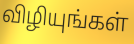
விழியுங்கள்